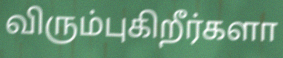
விரும்புகிறீர்களா